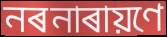
নৰনাৰায়ণে